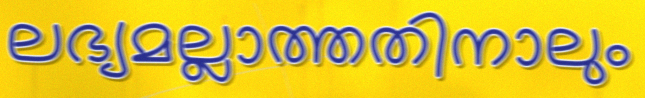
ലഭ്യമല്ലാത്തതിനാലും